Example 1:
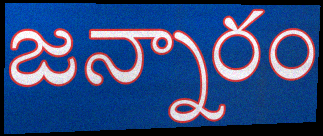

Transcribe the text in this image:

జన్నారం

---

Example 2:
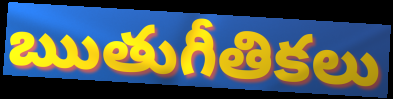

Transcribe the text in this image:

ఋతుగీతికలు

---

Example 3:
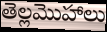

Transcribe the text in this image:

తెల్లమొహాలు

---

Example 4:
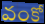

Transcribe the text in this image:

వంకో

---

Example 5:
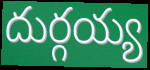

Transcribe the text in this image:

దుర్గయ్య